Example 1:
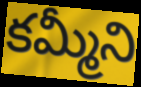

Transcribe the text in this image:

కమ్మీని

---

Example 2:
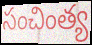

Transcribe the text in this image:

సంచింత్య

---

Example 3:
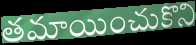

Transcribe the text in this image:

తమాయించుకొని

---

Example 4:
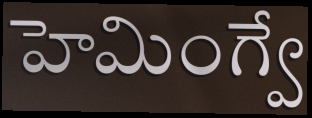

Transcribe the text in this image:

హెమింగ్వే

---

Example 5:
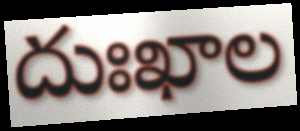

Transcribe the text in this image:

దుఃఖాల